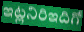
ఇట్లనిరిఇదిగో